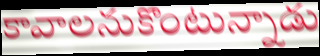
కావాలనుకొంటున్నాడు